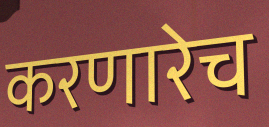
करणारेच